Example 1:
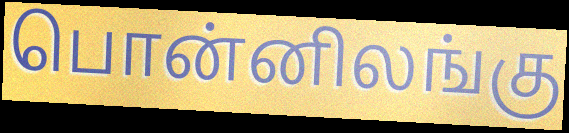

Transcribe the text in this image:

பொன்னிலங்கு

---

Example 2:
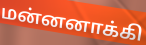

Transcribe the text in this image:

மன்னனாக்கி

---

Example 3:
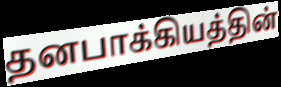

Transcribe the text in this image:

தனபாக்கியத்தின்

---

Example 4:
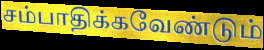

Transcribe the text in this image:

சம்பாதிக்கவேண்டும்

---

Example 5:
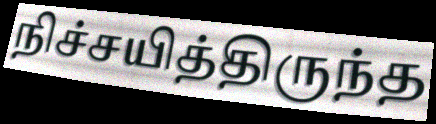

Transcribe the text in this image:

நிச்சயித்திருந்த